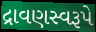
દ્રાવણસ્વરૂપે